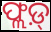
ଫ୍ଲଡ଼୍